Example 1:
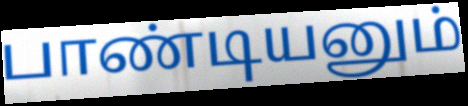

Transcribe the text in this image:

பாண்டியனும்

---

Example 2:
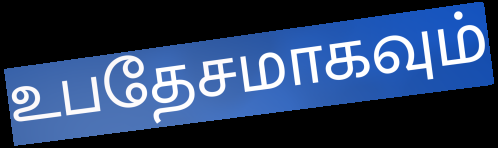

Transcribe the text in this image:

உபதேசமாகவும்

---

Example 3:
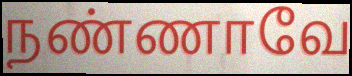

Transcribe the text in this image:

நண்ணாவே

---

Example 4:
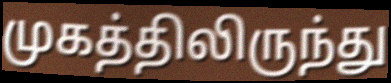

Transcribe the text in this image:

முகத்திலிருந்து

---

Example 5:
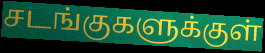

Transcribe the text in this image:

சடங்குகளுக்குள்